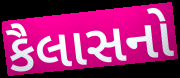
કૈલાસનો